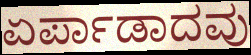
ಏರ್ಪಾಡಾದವು